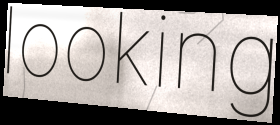
looking